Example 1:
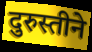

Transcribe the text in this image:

दुरुस्तीने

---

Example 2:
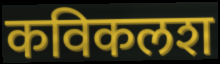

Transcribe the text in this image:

कविकलश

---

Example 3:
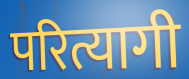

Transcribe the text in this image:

परित्यागी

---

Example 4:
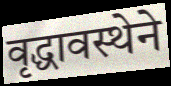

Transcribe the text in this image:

वृद्धावस्थेने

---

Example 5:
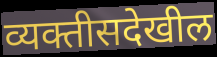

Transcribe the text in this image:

व्यक्तीसदेखील